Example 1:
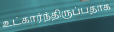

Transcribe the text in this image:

உட்கார்ந்திருப்பதாக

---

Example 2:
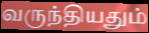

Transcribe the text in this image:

வருந்தியதும்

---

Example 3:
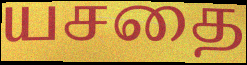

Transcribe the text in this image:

யசதை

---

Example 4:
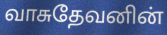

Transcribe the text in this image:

வாசுதேவனின்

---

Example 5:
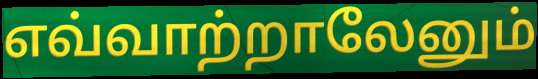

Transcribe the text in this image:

எவ்வாற்றாலேனும்